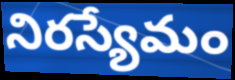
నిరస్యేమం